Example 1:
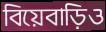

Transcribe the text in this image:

বিয়েবাড়িও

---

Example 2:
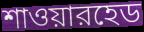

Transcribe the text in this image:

শাওয়ারহেড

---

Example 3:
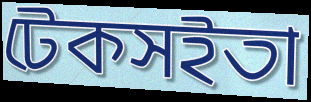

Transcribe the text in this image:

টেকসইতা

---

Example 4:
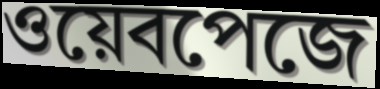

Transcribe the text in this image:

ওয়েবপেজে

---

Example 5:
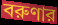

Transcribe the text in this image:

বরুণার